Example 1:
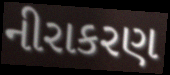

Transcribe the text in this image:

નીરાકરણ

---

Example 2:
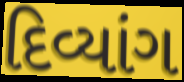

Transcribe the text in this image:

દિવ્યાંગ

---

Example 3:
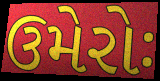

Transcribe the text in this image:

ઉમેરોઃ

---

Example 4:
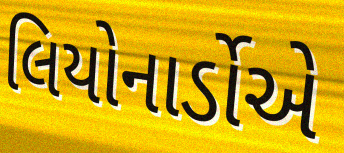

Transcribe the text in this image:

લિયોનાર્ડોએ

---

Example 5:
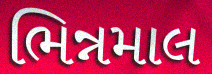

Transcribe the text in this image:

ભિન્નમાલ